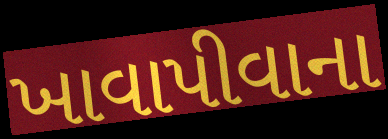
ખાવાપીવાના